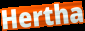
Hertha